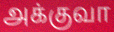
அக்குவா